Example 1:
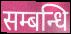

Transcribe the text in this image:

सम्बन्धि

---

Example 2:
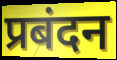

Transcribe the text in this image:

प्रबंदन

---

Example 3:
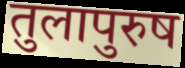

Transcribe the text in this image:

तुलापुरुष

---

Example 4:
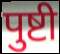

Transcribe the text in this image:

पुष्टी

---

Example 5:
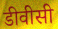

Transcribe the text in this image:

डीवीसी